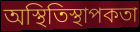
অস্থিতিস্থাপকতা